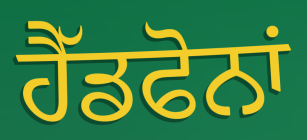
ਹੈੱਡਫੋਨਾਂ